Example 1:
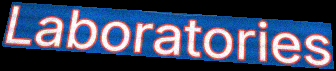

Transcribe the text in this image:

Laboratories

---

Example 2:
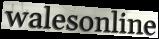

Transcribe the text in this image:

walesonline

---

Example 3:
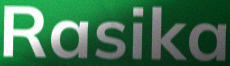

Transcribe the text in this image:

Rasika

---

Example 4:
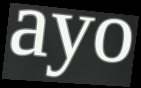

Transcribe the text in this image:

ayo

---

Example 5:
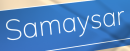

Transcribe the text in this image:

Samaysar